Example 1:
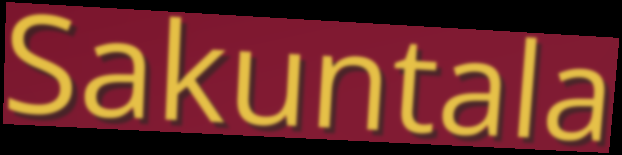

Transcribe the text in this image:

Sakuntala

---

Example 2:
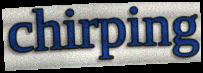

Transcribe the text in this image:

chirping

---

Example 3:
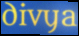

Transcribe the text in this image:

divya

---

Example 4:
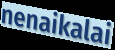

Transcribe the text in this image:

nenaikalai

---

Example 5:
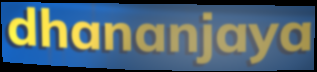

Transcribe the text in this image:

dhananjaya